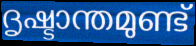
ദൃഷ്ടാന്തമുണ്ട്